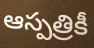
ఆస్పత్రికీ